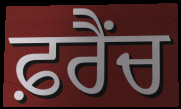
ਫ਼ਰੈਂਚ